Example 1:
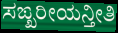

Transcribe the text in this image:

ಸಙ್ಖರೀಯನ್ತೀತಿ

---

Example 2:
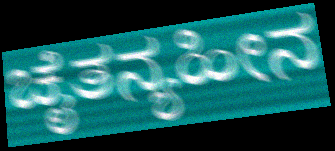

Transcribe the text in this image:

ಚೈತನ್ಯಹೀನ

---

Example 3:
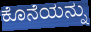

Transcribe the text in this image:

ಕೊನೆಯನ್ನು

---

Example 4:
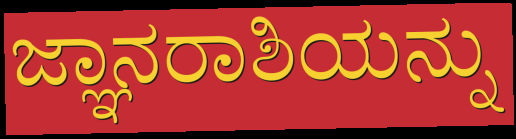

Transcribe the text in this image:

ಜ್ಞಾನರಾಶಿಯನ್ನು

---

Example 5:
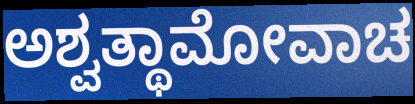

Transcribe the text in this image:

ಅಶ್ವತ್ಥಾಮೋವಾಚ